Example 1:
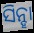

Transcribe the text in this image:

ସିନ୍ହା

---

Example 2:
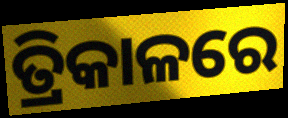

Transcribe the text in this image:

ତ୍ରିକାଳରେ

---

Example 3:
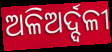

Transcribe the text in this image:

ଅଳିଅର୍ଦ୍ଦଳୀ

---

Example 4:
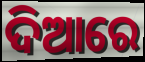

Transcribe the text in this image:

ଦିଆରେ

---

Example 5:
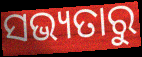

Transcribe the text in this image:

ସଭ୍ୟତାରୁ